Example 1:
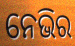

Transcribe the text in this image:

ନେଭିର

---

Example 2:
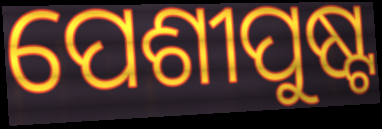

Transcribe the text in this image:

ପେଶୀପୁଷ୍ଟ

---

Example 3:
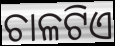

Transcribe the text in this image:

ଚାଳଟିଏ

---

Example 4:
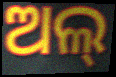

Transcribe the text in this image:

ଅଲ୍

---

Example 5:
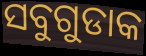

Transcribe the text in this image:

ସବୁଗୁଡାକ